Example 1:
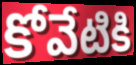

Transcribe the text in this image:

కోవేటికి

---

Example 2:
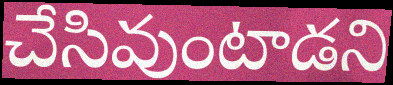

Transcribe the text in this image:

చేసివుంటాడని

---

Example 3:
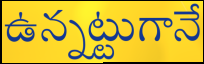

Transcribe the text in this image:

ఉన్నట్టుగానే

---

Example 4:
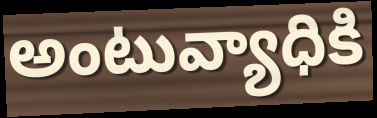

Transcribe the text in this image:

అంటువ్యాధికి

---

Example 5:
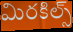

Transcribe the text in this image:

మిరకిల్స్